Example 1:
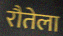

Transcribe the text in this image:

रौतेला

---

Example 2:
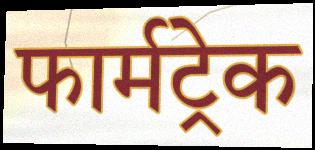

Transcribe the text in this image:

फार्मट्रेक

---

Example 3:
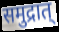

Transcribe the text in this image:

समुद्रात्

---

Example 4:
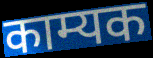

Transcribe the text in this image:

काम्यक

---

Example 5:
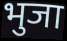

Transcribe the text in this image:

भुजा